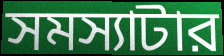
সমস্যাটার